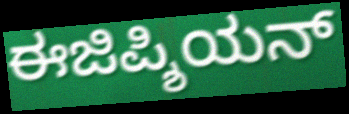
ಈಜಿಪ್ಶಿಯನ್